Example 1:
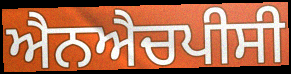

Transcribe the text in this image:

ਐਨਐਚਪੀਸੀ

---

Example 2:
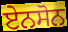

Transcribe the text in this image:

ਏਨਸੋਨ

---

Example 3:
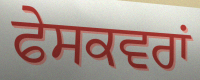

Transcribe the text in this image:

ਫੇਸਕਵਰਾਂ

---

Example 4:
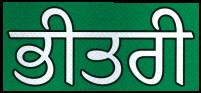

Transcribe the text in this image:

ਭੀਤਰੀ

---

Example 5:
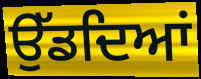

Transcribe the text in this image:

ਉੱਡਦਿਆਂ